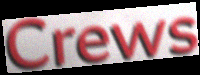
Crews